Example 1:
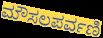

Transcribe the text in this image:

ಮೌಸಲಪರ್ವಣಿ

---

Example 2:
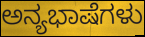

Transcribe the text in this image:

ಅನ್ಯಭಾಷೆಗಳು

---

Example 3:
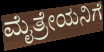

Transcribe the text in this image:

ಮೈತ್ರೇಯನಿಗೆ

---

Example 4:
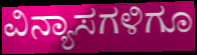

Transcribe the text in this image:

ವಿನ್ಯಾಸಗಳಿಗೂ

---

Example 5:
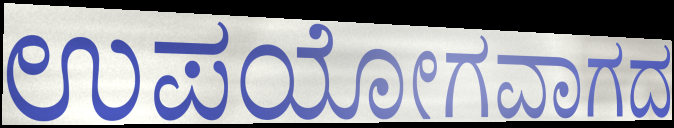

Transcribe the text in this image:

ಉಪಯೋಗವಾಗದ